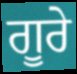
ਗੂਰੇ